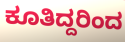
ಕೂತಿದ್ದರಿಂದ